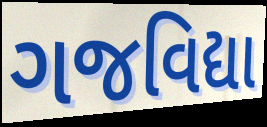
ગજવિદ્યા